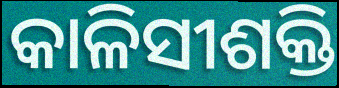
କାଳିସୀଶକ୍ତି